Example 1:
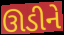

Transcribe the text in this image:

ઊડીને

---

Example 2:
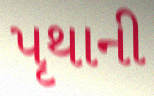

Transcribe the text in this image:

પૃથાની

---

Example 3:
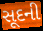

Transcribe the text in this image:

સૂદની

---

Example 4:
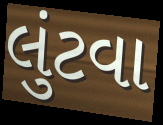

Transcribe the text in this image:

લુંટવા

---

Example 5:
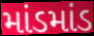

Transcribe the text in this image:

માંડમાંડ